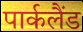
पार्कलैंड